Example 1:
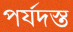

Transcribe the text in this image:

পর্যদস্ত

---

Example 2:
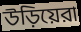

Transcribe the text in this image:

উড়িয়েরা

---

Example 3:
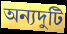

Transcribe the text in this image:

অন্যদুটি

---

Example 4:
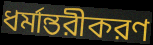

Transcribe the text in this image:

ধর্মান্তরীকরণ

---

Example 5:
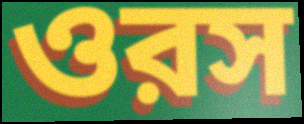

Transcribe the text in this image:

ওরস